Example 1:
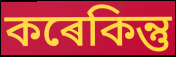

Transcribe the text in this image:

কৰেকিন্তু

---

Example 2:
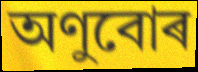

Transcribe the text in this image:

অণুবোৰ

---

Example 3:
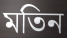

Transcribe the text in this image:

মতিন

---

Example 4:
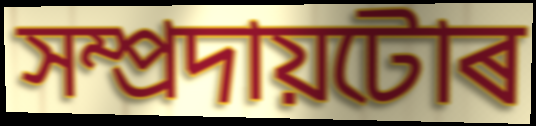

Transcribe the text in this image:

সম্প্ৰদায়টোৰ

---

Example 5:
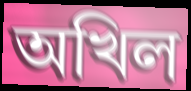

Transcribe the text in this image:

অখিল